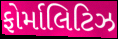
ફોર્માલિટિઝ